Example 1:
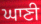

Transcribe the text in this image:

ਘਾਣੀ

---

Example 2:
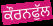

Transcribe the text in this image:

ਕੌਰਨਫੁੱਲ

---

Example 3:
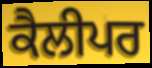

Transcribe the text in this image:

ਕੈਲੀਪਰ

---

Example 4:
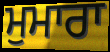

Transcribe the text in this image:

ਮੁਮਾਰਾ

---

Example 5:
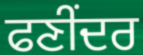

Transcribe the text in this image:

ਫਣੀਂਦਰ